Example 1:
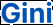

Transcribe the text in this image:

Gini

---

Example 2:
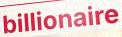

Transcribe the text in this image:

billionaire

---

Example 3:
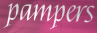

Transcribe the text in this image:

pampers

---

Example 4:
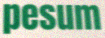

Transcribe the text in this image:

pesum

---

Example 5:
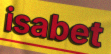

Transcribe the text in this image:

isabet